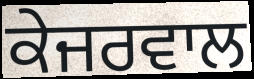
ਕੇਜਰਵਾਲ